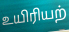
உயிரியற்